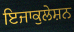
ਇਜਾਕੁਲੇਸ਼ਨ